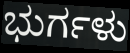
ಭುರ್ಗಳು